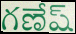
గణేష్